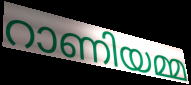
റാണിയമ്മ